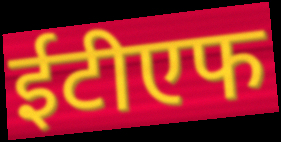
ईटीएफ